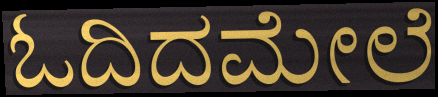
ಓದಿದಮೇಲೆ